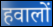
हवालों